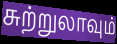
சுற்றுலாவும்